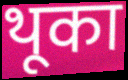
थूका